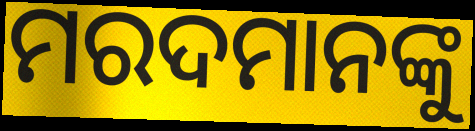
ମରଦମାନଙ୍କୁ